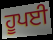
ਹੂਪਈ